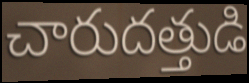
చారుదత్తుడి